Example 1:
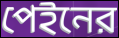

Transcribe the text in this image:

পেইনের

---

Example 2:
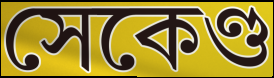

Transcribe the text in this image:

সেকেণ্ড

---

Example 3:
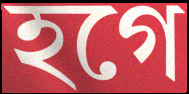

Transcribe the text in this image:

হগে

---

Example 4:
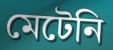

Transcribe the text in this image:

মেটেনি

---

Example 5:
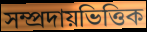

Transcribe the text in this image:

সম্প্রদায়ভিত্তিক